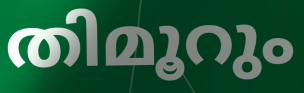
തിമൂറും